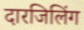
दारजिलिंग